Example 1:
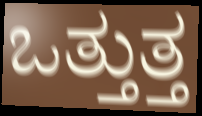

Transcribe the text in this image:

ಒತ್ತುತ್ತ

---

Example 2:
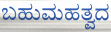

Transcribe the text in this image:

ಬಹುಮಹತ್ವದ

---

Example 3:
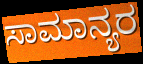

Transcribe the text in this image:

ಸಾಮಾನ್ಯರ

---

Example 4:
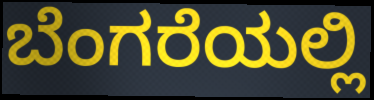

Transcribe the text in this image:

ಬೆಂಗರೆಯಲ್ಲಿ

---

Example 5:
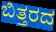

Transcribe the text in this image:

ಬಿತ್ತರದ